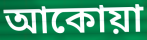
আকোয়া